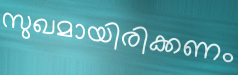
സുഖമായിരിക്കണം